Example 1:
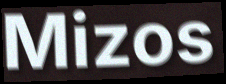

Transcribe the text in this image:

Mizos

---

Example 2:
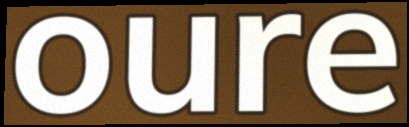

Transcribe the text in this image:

oure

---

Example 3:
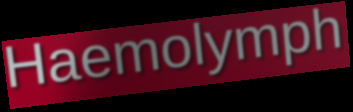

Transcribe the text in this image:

Haemolymph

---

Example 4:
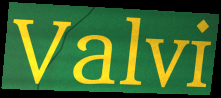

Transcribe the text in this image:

Valvi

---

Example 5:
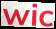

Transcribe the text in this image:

wic